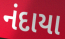
નંદાયા